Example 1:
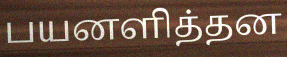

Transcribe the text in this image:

பயனளித்தன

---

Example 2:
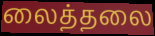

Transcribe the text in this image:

லைத்தலை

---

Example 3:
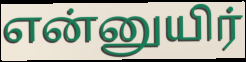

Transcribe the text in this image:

என்னுயிர்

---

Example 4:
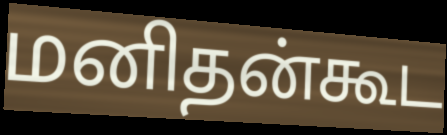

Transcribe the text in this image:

மனிதன்கூட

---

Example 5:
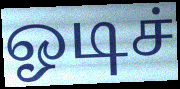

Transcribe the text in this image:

ஓடிச்